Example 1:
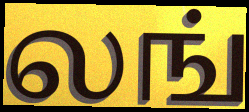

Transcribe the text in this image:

லங்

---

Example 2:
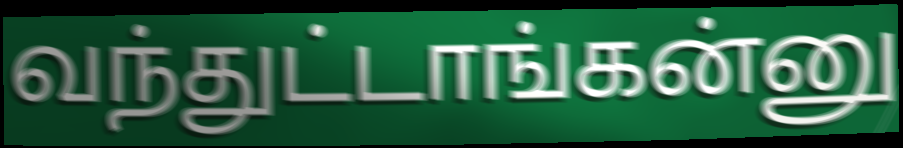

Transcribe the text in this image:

வந்துட்டாங்கன்னு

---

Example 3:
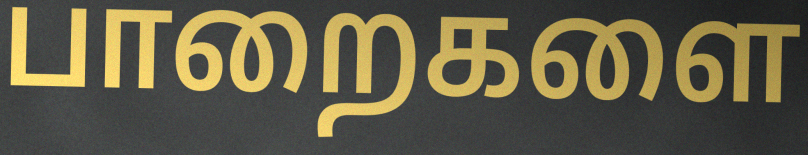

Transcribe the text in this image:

பாறைகளை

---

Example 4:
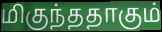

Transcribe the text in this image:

மிகுந்ததாகும்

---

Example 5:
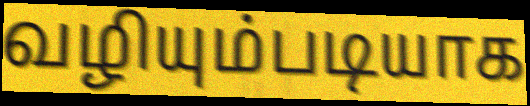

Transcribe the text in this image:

வழியும்படியாக